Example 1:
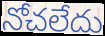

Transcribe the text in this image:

నోచలేదు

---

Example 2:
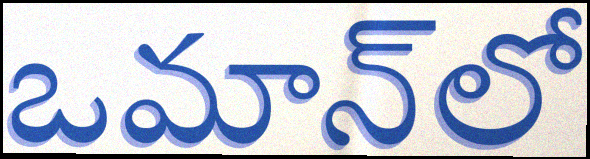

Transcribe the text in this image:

ఒమాన్‌లో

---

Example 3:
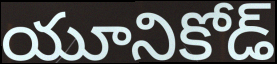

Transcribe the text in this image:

యూనికోడ్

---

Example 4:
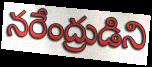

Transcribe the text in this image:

నరేంద్రుడిని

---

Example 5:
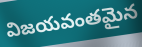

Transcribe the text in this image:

విజయవంతమైన